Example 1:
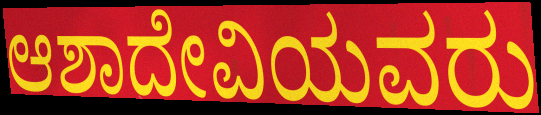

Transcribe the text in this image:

ಆಶಾದೇವಿಯವರು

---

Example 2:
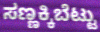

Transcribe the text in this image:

ಸಣ್ಣಕ್ಕಿಬೆಟ್ಟು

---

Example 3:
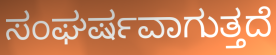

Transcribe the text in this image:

ಸಂಘರ್ಷವಾಗುತ್ತದೆ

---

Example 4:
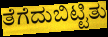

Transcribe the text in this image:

ತೆಗೆದುಬಿಟ್ಟಿತು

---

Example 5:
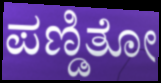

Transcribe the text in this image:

ಪಣ್ಡಿತೋ